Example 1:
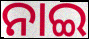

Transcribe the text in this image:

ନାଇ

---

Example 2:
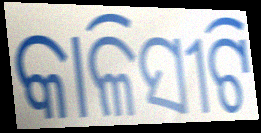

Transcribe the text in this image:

କାଳିସୀଟି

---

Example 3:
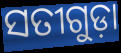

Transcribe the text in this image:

ସତୀଗୁଡ଼ା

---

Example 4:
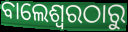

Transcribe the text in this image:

ବାଲେଶ୍ବରଠାରୁ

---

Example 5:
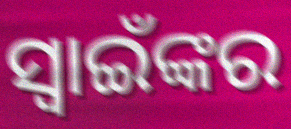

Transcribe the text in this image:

ସ୍ଵାଇଁଙ୍କର